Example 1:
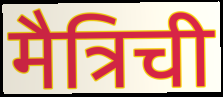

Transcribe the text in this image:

मैत्रिची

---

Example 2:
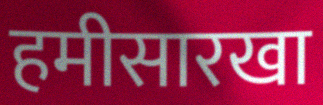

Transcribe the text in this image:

हमीसारखा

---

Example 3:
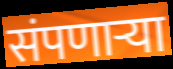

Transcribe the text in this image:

संपणार्‍या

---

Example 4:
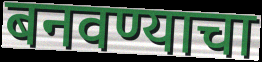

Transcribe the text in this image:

बनवण्याचा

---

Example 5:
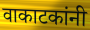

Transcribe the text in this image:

वाकाटकांनी